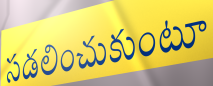
సడలించుకుంటూ